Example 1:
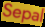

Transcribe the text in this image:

Sepal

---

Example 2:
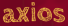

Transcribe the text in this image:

axios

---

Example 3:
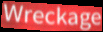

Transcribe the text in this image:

Wreckage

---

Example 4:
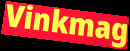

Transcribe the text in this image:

Vinkmag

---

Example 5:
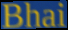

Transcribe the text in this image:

Bhai